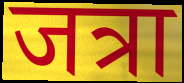
जत्रा